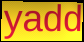
yadd